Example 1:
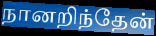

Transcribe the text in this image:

நானறிந்தேன்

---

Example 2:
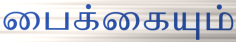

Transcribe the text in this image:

பைக்கையும்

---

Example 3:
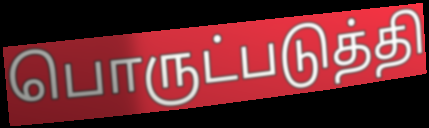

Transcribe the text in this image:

பொருட்படுத்தி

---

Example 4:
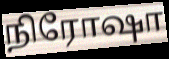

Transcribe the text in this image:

நிரோஷா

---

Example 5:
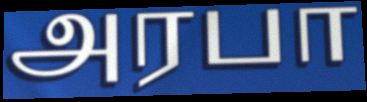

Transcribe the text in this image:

அரபா